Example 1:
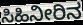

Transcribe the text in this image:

ಸಿಹಿನೀರಿನ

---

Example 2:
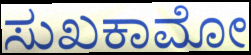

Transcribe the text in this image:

ಸುಖಕಾಮೋ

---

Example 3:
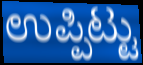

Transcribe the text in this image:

ಉಪ್ಪಿಟ್ಟು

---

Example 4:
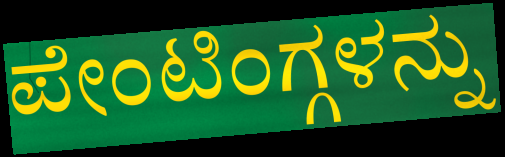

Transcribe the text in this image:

ಪೇಂಟಿಂಗ್ಗಳನ್ನು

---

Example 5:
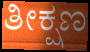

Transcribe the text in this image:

ತೀಕ್ಷಣ